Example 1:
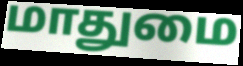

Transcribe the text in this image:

மாதுமை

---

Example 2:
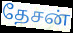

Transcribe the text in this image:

தேசன்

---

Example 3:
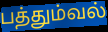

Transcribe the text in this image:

பத்தும்வல்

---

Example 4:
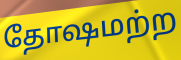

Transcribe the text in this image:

தோஷமற்ற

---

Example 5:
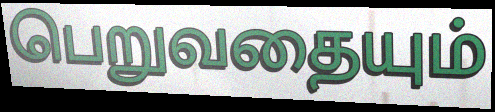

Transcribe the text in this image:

பெறுவதையும்